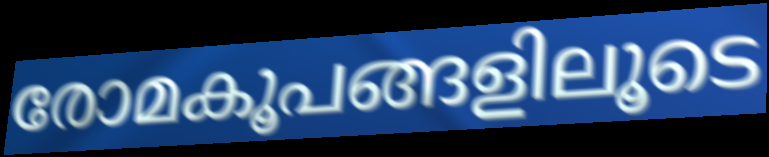
രോമകൂപങ്ങളിലൂടെ